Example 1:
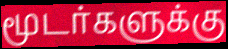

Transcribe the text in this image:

மூடர்களுக்கு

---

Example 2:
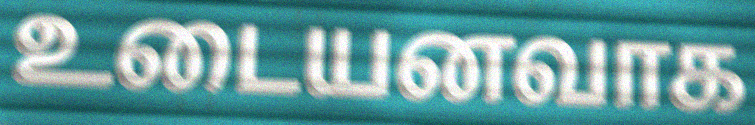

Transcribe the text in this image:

உடையனவாக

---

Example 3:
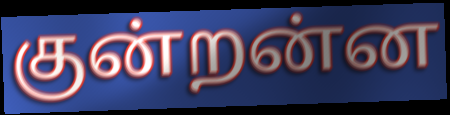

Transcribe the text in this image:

குன்றன்ன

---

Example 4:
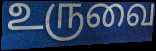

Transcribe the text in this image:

உருவை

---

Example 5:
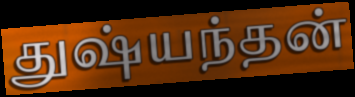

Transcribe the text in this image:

துஷ்யந்தன்